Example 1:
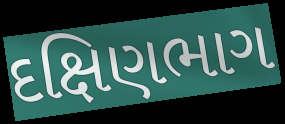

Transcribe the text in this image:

દક્ષિણભાગ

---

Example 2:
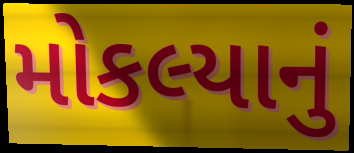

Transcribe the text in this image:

મોકલ્યાનું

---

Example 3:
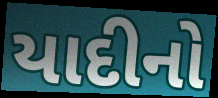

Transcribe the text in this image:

યાદીનો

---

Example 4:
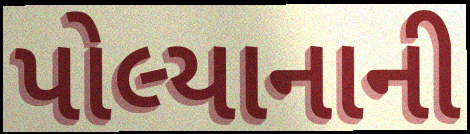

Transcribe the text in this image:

પોલ્યાનાની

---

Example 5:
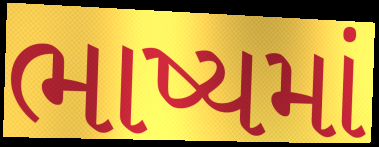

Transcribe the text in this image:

ભાષ્યમાં